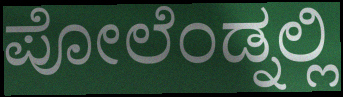
ಪೋಲೆಂಡ್ನಲ್ಲಿ